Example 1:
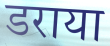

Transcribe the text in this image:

डराया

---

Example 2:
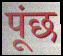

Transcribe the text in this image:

पूंछ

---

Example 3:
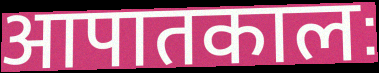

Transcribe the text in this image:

आपातकालः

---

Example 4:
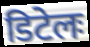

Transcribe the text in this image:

डिटेलः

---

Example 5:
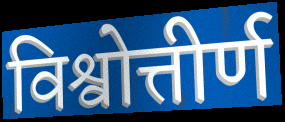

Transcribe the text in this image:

विश्वोत्तीर्ण